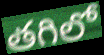
తగిలో